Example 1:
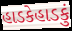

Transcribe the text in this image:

હાડકેહાડકું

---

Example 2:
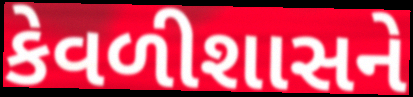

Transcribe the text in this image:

કેવળીશાસને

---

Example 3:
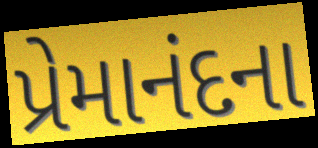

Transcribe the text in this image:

પ્રેમાનંદના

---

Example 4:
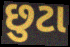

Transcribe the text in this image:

છુટા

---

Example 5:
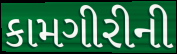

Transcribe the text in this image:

કામગીરીની